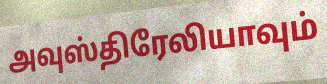
அவுஸ்திரேலியாவும்